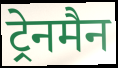
ट्रेनमैन